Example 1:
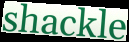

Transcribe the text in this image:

shackle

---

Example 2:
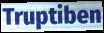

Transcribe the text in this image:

Truptiben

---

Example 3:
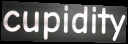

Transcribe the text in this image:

cupidity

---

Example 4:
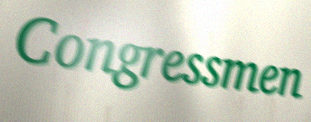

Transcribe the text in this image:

Congressmen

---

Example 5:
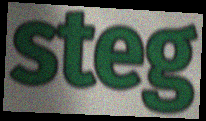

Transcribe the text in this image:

steg